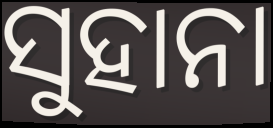
ସୁହାନା